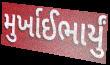
મુર્ખાઈભાર્યું